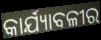
କାର୍ଯ୍ୟାବଳୀର